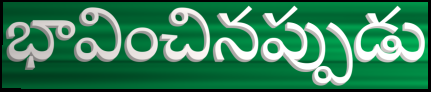
భావించినప్పుడు